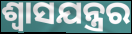
ଶ୍ୱାସଯନ୍ତ୍ରର